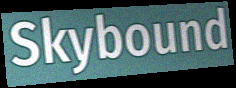
Skybound